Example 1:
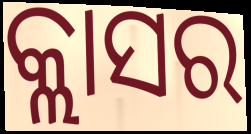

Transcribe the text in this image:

କ୍ଲାସର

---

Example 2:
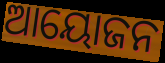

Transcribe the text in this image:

ଆୟୋଜନ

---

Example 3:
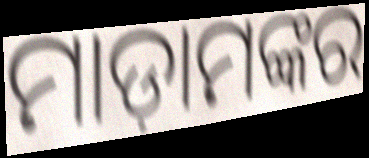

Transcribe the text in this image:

ମାଡ଼ାମଙ୍କର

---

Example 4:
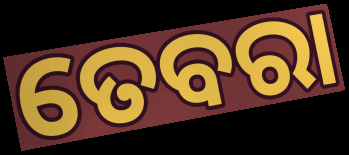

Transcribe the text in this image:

ତେବରା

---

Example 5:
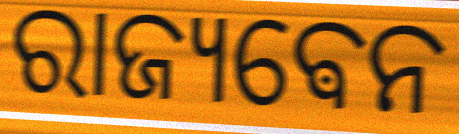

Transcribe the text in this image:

ରାଜ୍ୟଵେନ